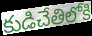
కుడిచేతిలోకి